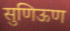
सुणिऊण